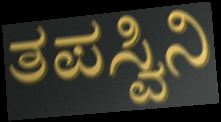
ತಪಸ್ವಿನಿ